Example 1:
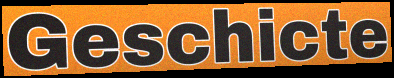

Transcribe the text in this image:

Geschicte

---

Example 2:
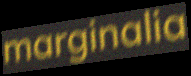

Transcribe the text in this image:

marginalia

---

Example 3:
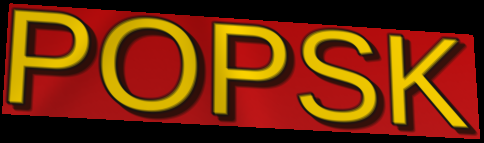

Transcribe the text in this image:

POPSK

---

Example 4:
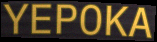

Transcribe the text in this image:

YEPOKA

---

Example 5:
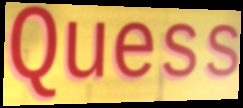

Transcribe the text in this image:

Quess